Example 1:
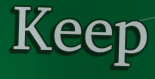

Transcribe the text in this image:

Keep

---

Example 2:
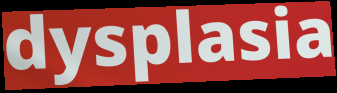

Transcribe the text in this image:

dysplasia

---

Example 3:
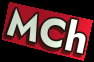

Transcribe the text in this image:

MCh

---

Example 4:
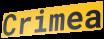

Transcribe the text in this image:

Crimea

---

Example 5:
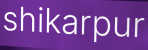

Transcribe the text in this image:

shikarpur